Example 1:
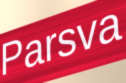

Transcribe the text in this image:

Parsva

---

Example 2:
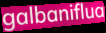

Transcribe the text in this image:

galbaniflua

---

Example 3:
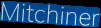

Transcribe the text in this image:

Mitchiner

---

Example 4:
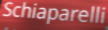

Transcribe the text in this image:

Schiaparelli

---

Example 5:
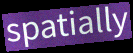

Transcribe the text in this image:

spatially